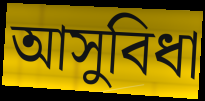
আসুবিধা